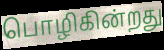
பொழிகின்றது